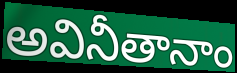
అవినీతానాం